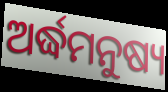
ଅର୍ଦ୍ଧମନୁଷ୍ୟ